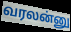
வரலன்னு